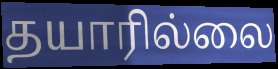
தயாரில்லை